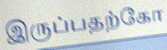
இருப்பதற்கோ